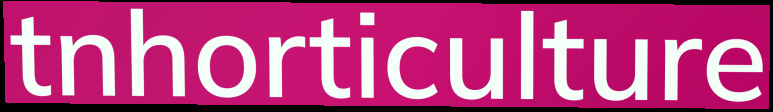
tnhorticulture